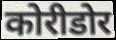
कोरीडोर